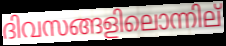
ദിവസങ്ങളിലൊന്നില്